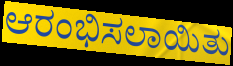
ಆರಂಭಿಸಲಾಯಿತು